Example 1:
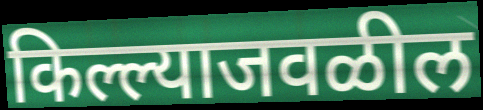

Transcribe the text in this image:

किल्ल्याजवळील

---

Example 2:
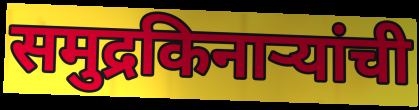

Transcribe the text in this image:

समुद्रकिनाऱ्यांची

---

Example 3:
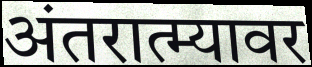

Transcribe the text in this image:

अंतरात्म्यावर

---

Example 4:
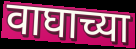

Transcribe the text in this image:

वाघाच्या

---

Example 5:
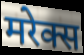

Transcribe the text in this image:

मरेक्स